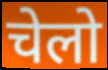
चेलो